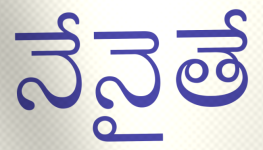
నేనైతే